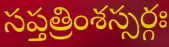
సప్తత్రింశస్సర్గః